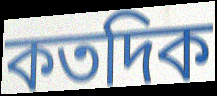
কতদিক